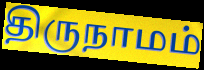
திருநாமம்